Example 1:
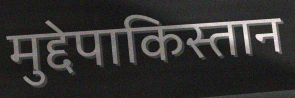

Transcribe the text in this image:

मुद्देपाकिस्तान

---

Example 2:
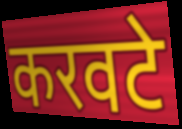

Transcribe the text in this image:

करवटे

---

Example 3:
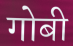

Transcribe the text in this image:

गोबी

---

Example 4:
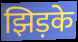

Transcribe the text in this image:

झिड़के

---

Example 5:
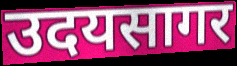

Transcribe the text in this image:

उदयसागर